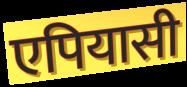
एपियासी